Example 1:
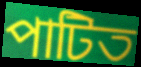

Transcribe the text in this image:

পাটিত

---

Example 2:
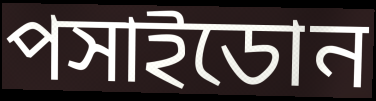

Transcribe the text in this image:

পসাইডোন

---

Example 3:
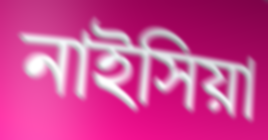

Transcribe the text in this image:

নাইসিয়া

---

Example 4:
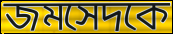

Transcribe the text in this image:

জমসেদকে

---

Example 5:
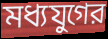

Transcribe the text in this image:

মধ্যযুগের